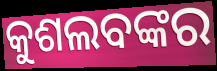
କୁଶଲବଙ୍କର